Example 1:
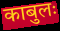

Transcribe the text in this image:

काबुलः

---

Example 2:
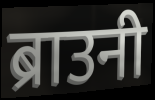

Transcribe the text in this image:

ब्राउनी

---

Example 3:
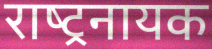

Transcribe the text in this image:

राष्ट्रनायक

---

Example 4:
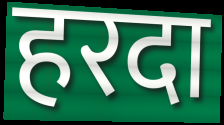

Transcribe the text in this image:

हरदा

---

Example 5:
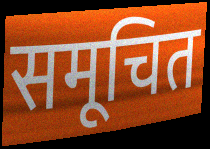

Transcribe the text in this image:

समूचित